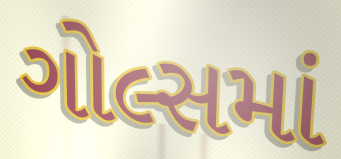
ગોલ્સમાં